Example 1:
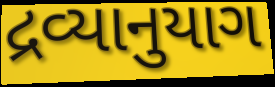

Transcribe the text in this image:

દ્રવ્યાનુયાગ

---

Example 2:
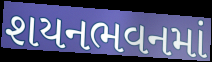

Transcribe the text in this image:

શયનભવનમાં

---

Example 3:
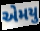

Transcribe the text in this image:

એમયુ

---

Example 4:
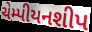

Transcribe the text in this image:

ચેમ્પીયનશીપ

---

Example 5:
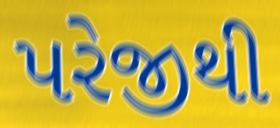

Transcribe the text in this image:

પરેજીથી